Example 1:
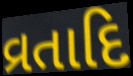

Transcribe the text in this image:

વ્રતાદિ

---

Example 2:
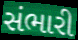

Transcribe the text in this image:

સંભારી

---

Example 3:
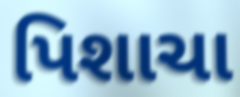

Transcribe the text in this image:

પિશાચા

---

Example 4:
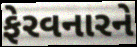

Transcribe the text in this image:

ફેરવનારને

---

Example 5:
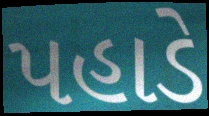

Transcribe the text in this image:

પહાડે